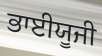
ਭਾਈਯੂਜੀ